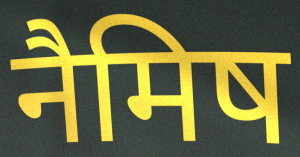
नैमिष